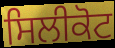
ਸਿਲੀਕੋਟ